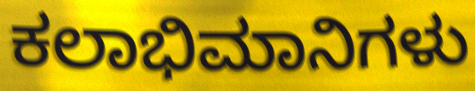
ಕಲಾಭಿಮಾನಿಗಳು